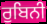
ਰੁਬਿਨੀ